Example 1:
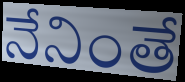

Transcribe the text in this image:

నేనింతే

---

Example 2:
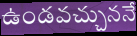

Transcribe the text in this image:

ఉండవచ్చుననే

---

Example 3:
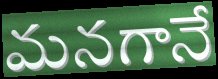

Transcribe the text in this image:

మనగానే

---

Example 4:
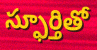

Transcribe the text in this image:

స్ఫూర్తితో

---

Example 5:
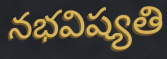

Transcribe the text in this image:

నభవిష్యతి